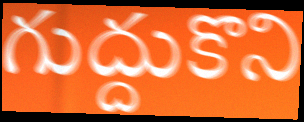
గుద్దుకొని